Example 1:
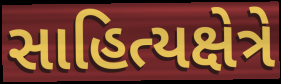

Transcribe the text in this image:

સાહિત્યક્ષેત્રે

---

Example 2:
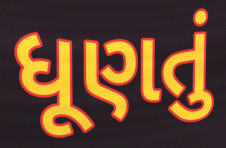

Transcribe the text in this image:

ધૂણતું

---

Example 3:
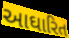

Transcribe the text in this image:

આઘારિત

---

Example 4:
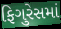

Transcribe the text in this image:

ફિગુરેસમાં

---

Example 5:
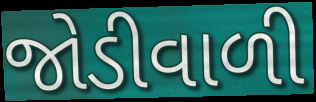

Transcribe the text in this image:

જોડીવાળી